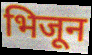
भिजून